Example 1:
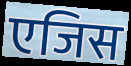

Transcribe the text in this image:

एजिस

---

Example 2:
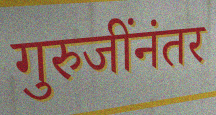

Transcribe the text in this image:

गुरुजींनंतर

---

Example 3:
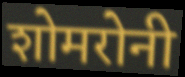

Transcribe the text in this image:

शोमरोनी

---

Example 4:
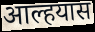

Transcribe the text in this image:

आल्हयास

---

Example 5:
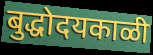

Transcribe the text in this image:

बुद्धोदयकाळी